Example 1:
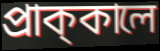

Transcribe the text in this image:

প্রাক্‌কালে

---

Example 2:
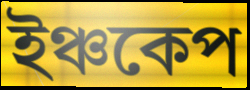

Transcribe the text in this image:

ইঞ্চকেপ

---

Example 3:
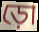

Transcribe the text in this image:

ড়ো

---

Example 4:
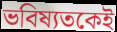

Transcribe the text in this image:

ভবিষ্যতকেই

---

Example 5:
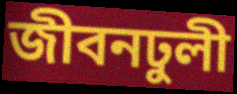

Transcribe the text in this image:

জীবনঢুলী